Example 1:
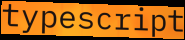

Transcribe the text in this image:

typescript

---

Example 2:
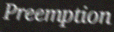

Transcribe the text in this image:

Preemption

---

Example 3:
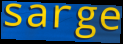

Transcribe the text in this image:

sarge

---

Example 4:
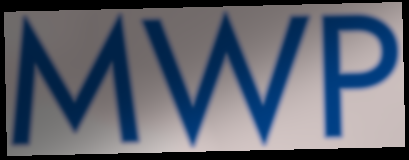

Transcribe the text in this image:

MWP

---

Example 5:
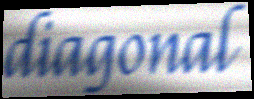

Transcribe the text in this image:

diagonal